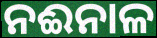
ନଈନାଳ